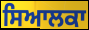
ਸਿਆਲਕਾ